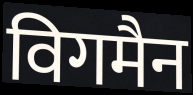
विगमैन